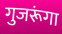
गुजरूंगा